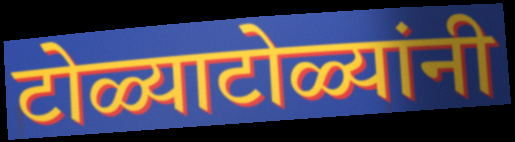
टोळ्याटोळ्यांनी